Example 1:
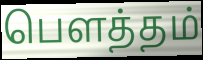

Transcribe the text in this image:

பௌத்தம்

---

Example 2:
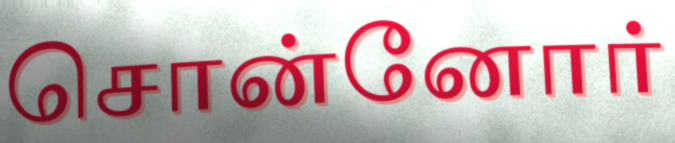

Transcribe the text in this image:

சொன்னோர்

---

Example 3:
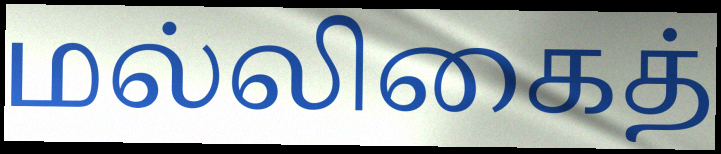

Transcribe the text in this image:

மல்லிகைத்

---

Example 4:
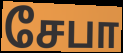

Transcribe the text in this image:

சேபா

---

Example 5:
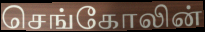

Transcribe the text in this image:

செங்கோலின்